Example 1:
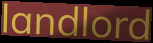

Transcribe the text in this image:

landlord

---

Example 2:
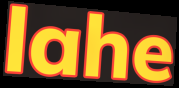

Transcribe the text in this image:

lahe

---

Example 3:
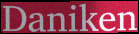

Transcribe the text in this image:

Daniken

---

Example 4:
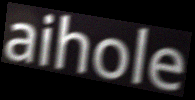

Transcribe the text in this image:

aihole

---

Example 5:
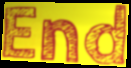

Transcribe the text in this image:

End